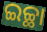
ଇଚ୍ଛା